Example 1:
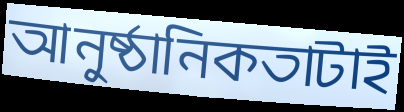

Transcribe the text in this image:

আনুষ্ঠানিকতাটাই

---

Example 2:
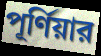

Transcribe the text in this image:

পূর্ণিয়ার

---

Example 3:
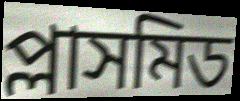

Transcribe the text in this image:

প্লাসমিড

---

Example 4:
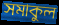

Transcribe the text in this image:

সমাকুল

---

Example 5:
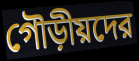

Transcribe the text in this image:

গৌড়ীয়দের